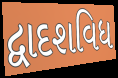
દ્વાદશવિધ